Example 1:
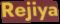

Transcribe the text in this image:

Rejiya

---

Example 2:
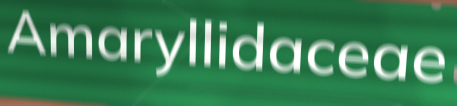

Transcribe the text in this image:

Amaryllidaceae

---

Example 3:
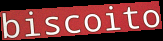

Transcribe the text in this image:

biscoito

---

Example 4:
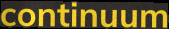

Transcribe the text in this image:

continuum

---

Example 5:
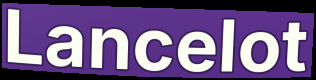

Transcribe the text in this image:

Lancelot